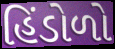
હિંડોળો